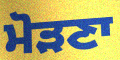
ਮੋੜਣਾ